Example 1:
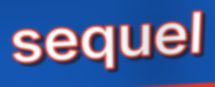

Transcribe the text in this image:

sequel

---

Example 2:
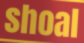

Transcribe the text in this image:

shoal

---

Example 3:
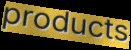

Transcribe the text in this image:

products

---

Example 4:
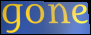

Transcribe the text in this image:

gone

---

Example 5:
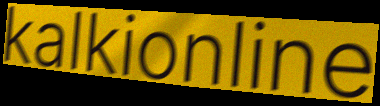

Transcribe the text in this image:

kalkionline